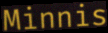
Minnis